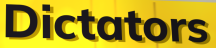
Dictators